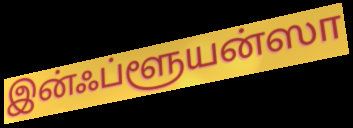
இன்ஃப்ளூயன்ஸா